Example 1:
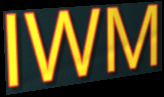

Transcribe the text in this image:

IWM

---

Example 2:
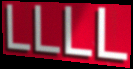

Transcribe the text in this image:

LLLL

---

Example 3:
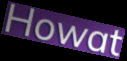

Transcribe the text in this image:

Howat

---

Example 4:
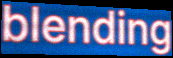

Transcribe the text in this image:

blending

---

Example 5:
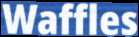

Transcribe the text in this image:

Waffles